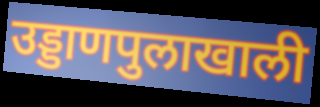
उड्डाणपुलाखाली